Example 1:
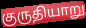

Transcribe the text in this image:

குருதியாறு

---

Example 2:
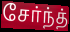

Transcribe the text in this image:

சேர்ந்த்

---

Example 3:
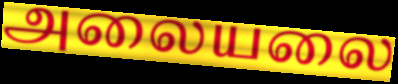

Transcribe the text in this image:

அலையலை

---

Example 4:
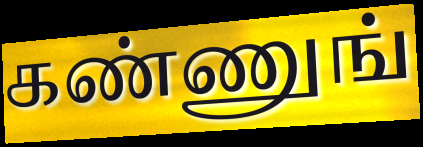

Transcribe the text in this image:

கண்ணுங்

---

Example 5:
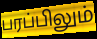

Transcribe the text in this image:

பரப்பிலும்